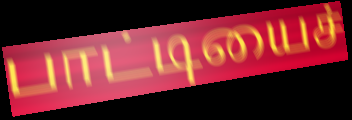
பாட்டியைச்